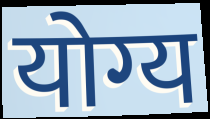
योग्य